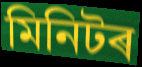
মিনিটৰ